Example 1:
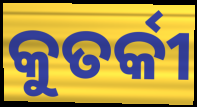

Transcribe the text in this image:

କୁତର୍କୀ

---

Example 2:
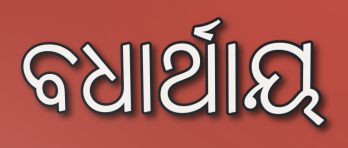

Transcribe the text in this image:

ବଧାର୍ଥାୟ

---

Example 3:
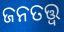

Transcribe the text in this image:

ଜନତତ୍ତ୍ୱ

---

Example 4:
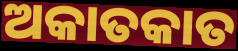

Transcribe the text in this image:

ଅକାତକାତ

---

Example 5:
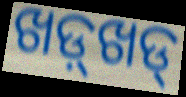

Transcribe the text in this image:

ଖଡ଼୍‌ଖଡ୍